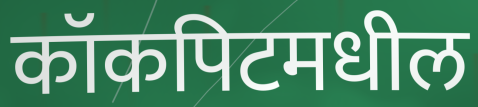
कॉकपिटमधील